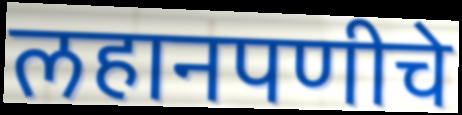
लहानपणीचे